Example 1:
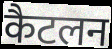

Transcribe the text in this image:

कैटलन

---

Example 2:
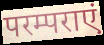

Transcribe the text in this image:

परम्पराएं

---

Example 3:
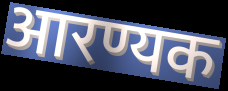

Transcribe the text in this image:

आरण्यक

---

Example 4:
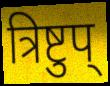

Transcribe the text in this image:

त्रिष्टुप्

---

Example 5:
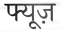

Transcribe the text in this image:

फ्यूज़